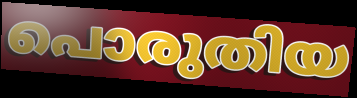
പൊരുതിയ